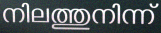
നിലത്തുനിന്ന്